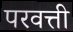
परवत्ती